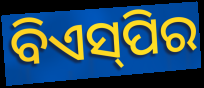
ବିଏସ୍‌ପିର